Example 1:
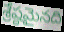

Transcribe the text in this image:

శ్రేష్ఠమైనది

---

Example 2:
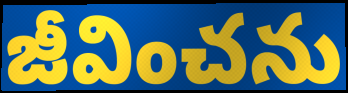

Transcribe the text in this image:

జీవించను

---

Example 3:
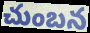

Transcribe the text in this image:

చుంబన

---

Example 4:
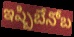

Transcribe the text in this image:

ఇష్బిబేనోబ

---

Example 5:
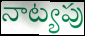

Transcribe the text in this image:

నాట్యపు